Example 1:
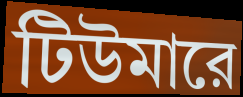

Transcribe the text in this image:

টিউমারে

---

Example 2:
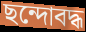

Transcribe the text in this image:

ছন্দোবদ্ধ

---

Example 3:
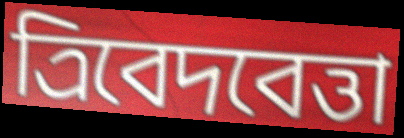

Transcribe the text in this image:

ত্রিবেদবেত্তা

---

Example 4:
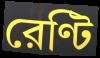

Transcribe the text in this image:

রেণ্টি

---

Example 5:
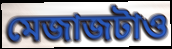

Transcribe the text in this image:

মেজাজটাও